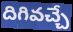
దిగివచ్చే